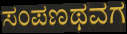
ಸಂಪಣಥವಗ